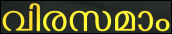
വിരസമാം